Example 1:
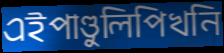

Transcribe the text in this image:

এইপাণ্ডুলিপিখনি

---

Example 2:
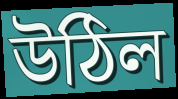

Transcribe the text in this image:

উঠিল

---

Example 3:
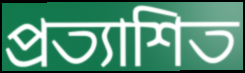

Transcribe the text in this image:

প্ৰত্যাশিত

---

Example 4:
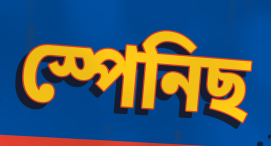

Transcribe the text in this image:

স্পেনিছ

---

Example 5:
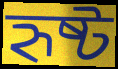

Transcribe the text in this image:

হৃষ্ট